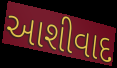
આશીવાદ